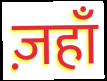
ज़हाँ